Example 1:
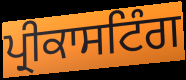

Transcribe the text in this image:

ਪ੍ਰੀਕਾਸਟਿੰਗ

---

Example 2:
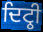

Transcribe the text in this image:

ਦਿਟ੍ਠੀ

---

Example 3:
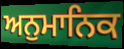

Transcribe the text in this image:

ਅਨੁਮਾਨਿਕ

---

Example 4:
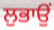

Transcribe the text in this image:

ਲੁਭਾਉਂ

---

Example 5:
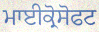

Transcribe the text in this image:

ਮਾਈਕ੍ਰੋਸੋਫਟ